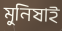
মুনিষাই